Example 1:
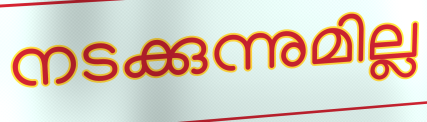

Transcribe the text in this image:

നടക്കുന്നുമില്ല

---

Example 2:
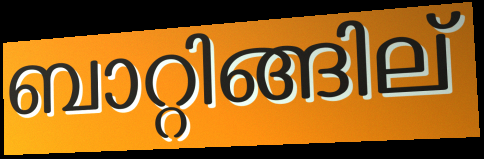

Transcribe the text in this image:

ബാറ്റിങ്ങില്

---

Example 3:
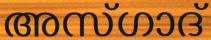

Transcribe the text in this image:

അസ്ഗാദ്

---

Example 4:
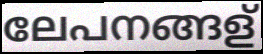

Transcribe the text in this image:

ലേപനങ്ങള്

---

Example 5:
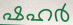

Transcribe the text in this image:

ഷഹർ